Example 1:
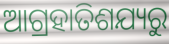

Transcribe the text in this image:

ଆଗ୍ରହାତିଶଯ୍ୟରୁ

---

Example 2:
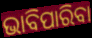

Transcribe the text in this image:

ଭାବିପାରିବା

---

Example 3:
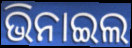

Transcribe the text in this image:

ଭିନାଇଲ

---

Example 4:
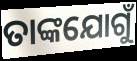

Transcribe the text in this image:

ତାଙ୍କଯୋଗୁଁ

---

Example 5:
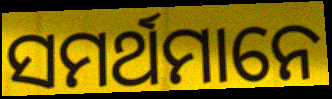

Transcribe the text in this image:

ସମର୍ଥମାନେ